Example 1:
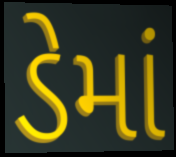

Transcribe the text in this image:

ડેમાં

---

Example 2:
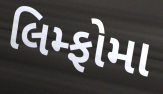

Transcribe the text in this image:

લિમ્ફોમા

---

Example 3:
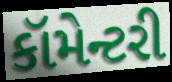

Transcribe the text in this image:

કૉમેન્ટરી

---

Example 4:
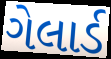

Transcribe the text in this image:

ગેલાર્ડ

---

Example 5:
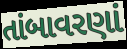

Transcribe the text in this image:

તાંબાવરણાં